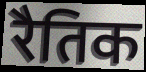
रैतिक